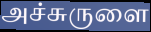
அச்சுருளை